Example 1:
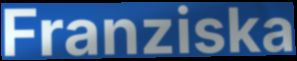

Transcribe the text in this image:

Franziska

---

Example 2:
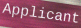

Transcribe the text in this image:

Applicant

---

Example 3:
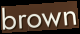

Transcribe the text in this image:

brown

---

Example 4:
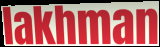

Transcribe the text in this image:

lakhman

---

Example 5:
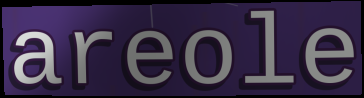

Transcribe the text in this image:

areole